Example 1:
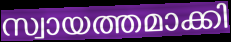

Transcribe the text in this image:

സ്വായത്തമാക്കി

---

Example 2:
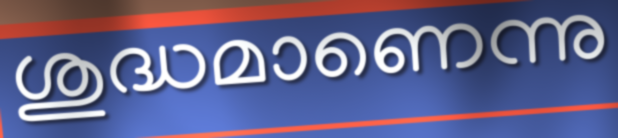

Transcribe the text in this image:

ശുദ്ധമാണെന്നു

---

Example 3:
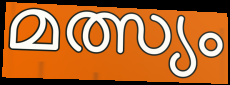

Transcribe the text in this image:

മത്സ്യം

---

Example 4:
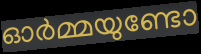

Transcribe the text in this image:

ഓർമ്മയുണ്ടോ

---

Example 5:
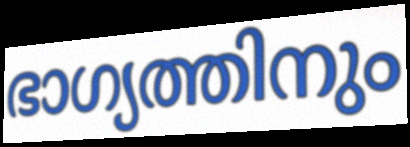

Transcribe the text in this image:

ഭാഗ്യത്തിനും